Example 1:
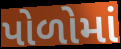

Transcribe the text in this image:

પોળોમાં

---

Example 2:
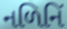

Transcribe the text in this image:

નળિનિં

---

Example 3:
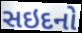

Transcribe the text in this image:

સઇદનો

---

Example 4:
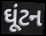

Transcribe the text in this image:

ઘૂંટન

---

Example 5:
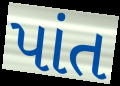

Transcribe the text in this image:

પાંત